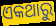
ଏକଥାରୁ